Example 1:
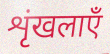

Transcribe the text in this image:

शृंखलाएँ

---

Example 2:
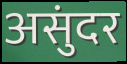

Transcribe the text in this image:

असुंदर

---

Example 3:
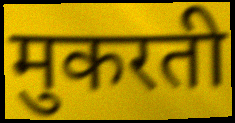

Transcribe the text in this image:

मुकरती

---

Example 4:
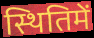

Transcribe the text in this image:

स्थितिमें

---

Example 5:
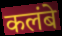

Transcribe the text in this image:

कलंबे